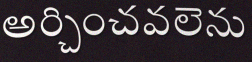
అర్చించవలెను